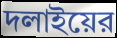
দলাইয়ের